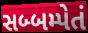
સબ્બમ્પેતં